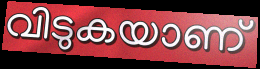
വിടുകയാണ്